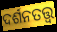
ଦର୍ଶନତତ୍ତ୍ଵ